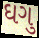
ઘગુ